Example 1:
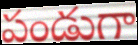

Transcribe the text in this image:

పండుగా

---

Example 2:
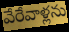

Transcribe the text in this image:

వేరేవాళ్లను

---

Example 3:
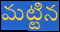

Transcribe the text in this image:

మట్టిన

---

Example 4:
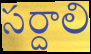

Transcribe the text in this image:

సర్దాలి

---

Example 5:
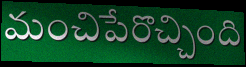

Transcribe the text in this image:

మంచిపేరొచ్చింది